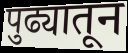
पुढ्यातून